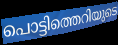
പൊട്ടിത്തെറിയുടെ